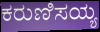
ಕರುಣಿಸಯ್ಯ